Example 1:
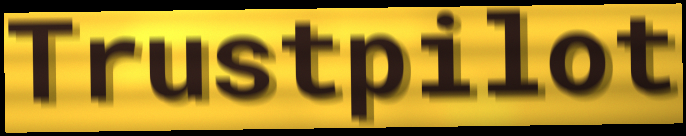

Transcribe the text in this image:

Trustpilot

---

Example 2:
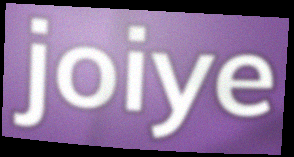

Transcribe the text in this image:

joiye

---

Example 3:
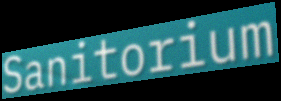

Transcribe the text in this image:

Sanitorium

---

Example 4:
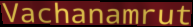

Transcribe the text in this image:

Vachanamrut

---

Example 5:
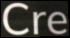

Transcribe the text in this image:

Cre